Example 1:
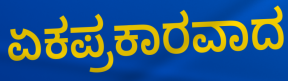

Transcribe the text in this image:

ಏಕಪ್ರಕಾರವಾದ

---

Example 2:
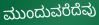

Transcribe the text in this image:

ಮುಂದುವರೆದೆವು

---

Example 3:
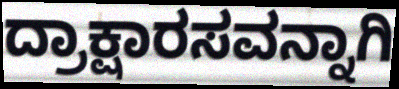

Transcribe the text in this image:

ದ್ರಾಕ್ಷಾರಸವನ್ನಾಗಿ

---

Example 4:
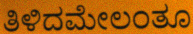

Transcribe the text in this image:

ತಿಳಿದಮೇಲಂತೂ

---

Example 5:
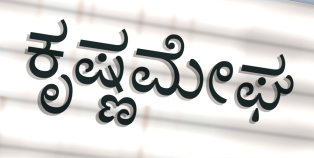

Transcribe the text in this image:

ಕೃಷ್ಣಮೇಘ